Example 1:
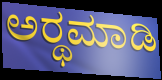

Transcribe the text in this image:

ಅರ್‍ಥಮಾಡಿ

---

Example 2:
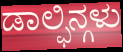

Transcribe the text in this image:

ಡಾಲ್ಫಿನ್ಗಳು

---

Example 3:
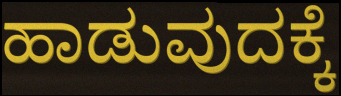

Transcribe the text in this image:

ಹಾಡುವುದಕ್ಕೆ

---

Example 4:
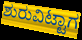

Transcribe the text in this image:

ಶುರುವಿಟ್ಟಾಗ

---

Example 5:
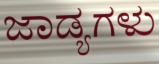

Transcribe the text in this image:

ಜಾಡ್ಯಗಳು